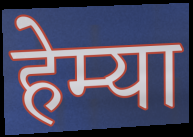
हेम्या